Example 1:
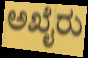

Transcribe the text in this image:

ಅಖೈರು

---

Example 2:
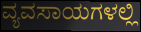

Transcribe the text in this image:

ವ್ಯವಸಾಯಗಳಲ್ಲಿ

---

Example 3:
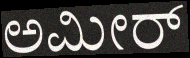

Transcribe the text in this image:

ಅಮೀರ್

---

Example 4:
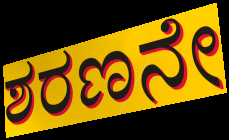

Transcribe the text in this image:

ಶರಣನೇ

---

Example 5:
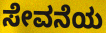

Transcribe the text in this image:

ಸೇವನೆಯ